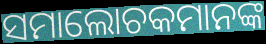
ସମାଲୋଚକମାନଙ୍କ